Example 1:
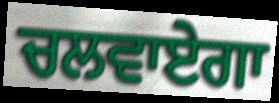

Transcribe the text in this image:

ਚਲਵਾਏਗਾ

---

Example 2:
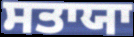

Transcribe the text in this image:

ਸਤਾਯਾ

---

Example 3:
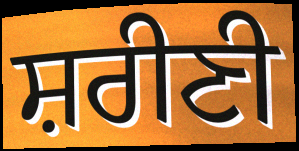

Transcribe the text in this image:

ਸ਼ਰੀਣੀ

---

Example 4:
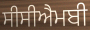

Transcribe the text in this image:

ਸੀਸੀਐਮਬੀ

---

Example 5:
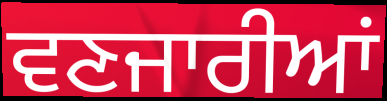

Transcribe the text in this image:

ਵਣਜਾਰੀਆਂ